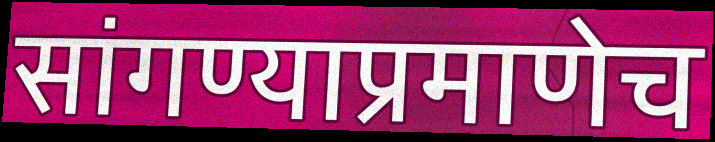
सांगण्याप्रमाणेच